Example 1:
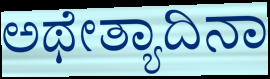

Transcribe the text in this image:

ಅಥೇತ್ಯಾದಿನಾ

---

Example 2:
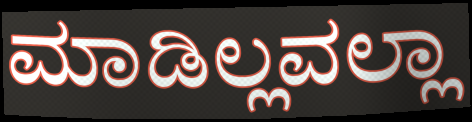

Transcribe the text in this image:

ಮಾಡಿಲ್ಲವಲ್ಲಾ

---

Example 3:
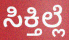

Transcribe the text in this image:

ಸಿಕ್ತಿಲ್ಲೆ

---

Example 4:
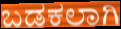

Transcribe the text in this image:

ಬಡಕಲಾಗಿ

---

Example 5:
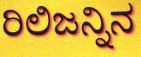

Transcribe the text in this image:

ರಿಲಿಜನ್ನಿನ